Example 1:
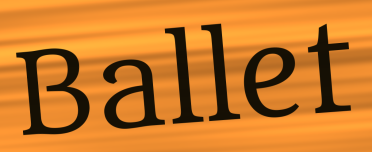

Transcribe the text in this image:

Ballet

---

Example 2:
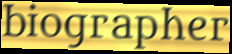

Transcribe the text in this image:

biographer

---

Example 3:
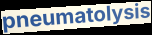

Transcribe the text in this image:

pneumatolysis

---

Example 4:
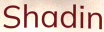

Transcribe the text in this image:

Shadin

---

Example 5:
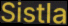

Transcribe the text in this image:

Sistla